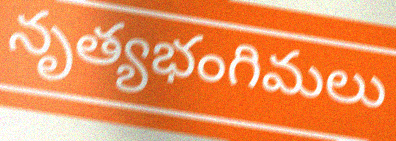
నృత్యభంగిమలు